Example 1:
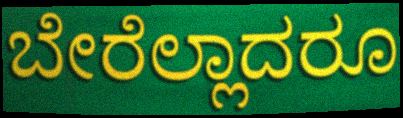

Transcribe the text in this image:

ಬೇರೆಲ್ಲಾದರೂ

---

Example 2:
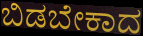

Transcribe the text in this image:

ಬಿಡಬೇಕಾದ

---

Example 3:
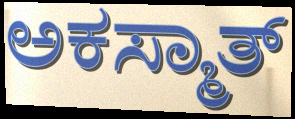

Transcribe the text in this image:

ಅಕಸ್ಮಾತ್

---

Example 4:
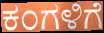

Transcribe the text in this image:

ಕಂಗಳಿಗೆ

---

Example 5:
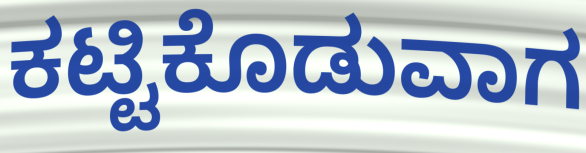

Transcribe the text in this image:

ಕಟ್ಟಿಕೊಡುವಾಗ